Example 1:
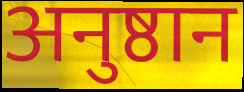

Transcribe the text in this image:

अनुष्ठान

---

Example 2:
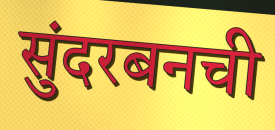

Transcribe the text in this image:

सुंदरबनची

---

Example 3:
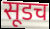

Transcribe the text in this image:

सूडच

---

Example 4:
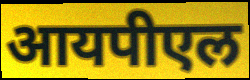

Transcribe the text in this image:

आयपीएल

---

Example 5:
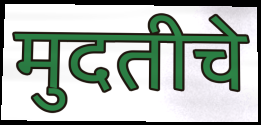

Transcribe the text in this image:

मुदतीचे